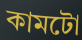
কামটো